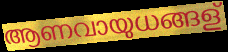
ആണവായുധങ്ങള്